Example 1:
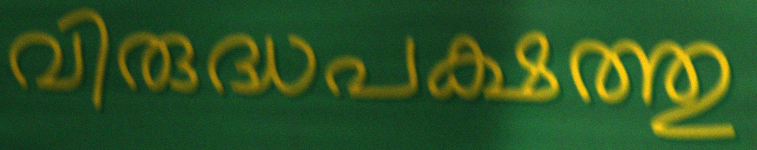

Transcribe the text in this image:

വിരുദ്ധപക്ഷത്തു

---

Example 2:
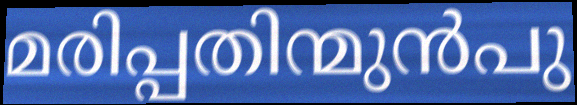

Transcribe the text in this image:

മരിപ്പതിന്മുൻപു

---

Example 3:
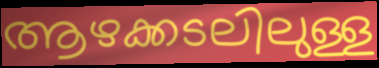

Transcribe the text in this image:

ആഴക്കടലിലുള്ള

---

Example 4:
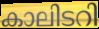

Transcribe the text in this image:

കാലിടറി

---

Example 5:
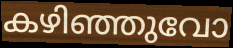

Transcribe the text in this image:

കഴിഞ്ഞുവോ